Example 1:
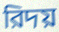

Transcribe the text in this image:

রিদয়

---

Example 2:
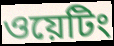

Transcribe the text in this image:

ওয়েটিং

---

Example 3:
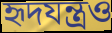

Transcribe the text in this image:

হৃদযন্ত্রও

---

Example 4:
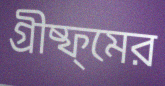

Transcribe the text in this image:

গ্রীষ্ফ্মের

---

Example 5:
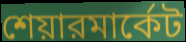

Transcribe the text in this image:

শেয়ারমার্কেট